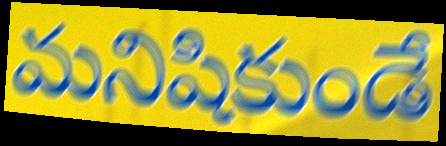
మనిషికుండే